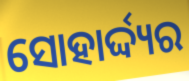
ସୋହାର୍ଦ୍ଦ୍ୟର